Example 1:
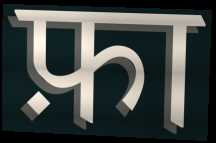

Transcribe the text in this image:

फ़ा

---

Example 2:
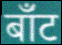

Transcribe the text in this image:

बांँट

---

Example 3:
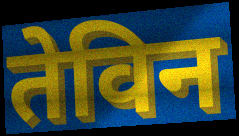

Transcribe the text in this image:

तेविन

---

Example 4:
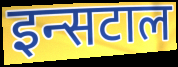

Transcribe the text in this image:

इन्सटाल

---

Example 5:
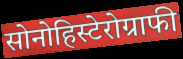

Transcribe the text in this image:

सोनोहिस्टेरोग्राफी